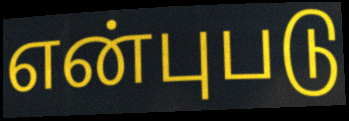
என்புபடு